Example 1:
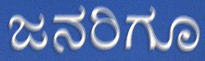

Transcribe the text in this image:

ಜನರಿಗೂ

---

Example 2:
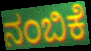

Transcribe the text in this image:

ನಂಬಿಕೆ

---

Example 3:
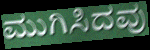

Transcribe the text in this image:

ಮುಗಿಸಿದವು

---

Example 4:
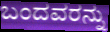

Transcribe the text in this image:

ಬಂದವರನ್ನು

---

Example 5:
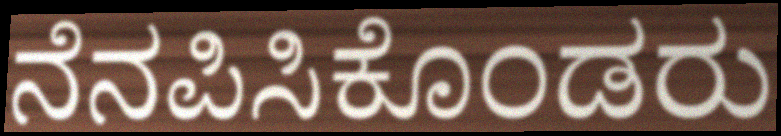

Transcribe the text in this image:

ನೆನಪಿಸಿಕೊಂಡರು